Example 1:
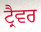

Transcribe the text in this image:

ਟ੍ਰੈਵਰ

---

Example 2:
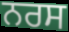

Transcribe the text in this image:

ਨਰਸ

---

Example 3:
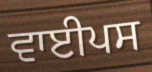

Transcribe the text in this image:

ਵਾਈਪਸ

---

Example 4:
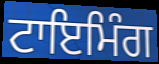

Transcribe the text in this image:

ਟਾਇਮਿੰਗ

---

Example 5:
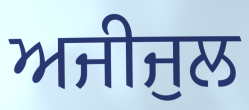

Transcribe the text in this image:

ਅਜੀਜੁਲ